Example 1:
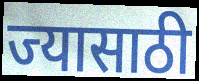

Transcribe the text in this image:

ज्यासाठी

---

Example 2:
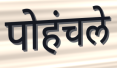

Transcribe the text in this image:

पोहंचले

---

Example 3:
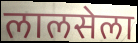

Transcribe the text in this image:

लालसेला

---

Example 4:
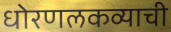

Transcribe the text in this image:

धोरणलकव्याची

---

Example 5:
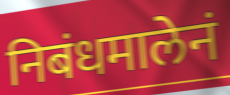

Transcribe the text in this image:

निबंधमालेनं